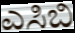
ಎಸಿಬಿ